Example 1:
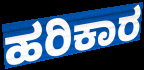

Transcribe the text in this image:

ಹರಿಕಾರ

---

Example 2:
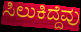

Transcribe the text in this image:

ಸಿಲುಕಿದ್ದೆವು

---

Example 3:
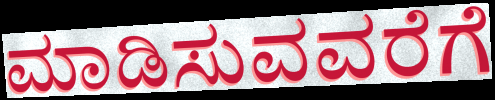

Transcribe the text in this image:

ಮಾಡಿಸುವವರೆಗೆ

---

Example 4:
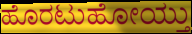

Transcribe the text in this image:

ಹೊರಟುಹೋಯ್ತು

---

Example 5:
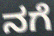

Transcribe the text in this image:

ನಗೆ